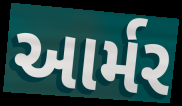
આર્મર